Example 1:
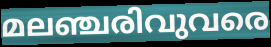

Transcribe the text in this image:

മലഞ്ചരിവുവരെ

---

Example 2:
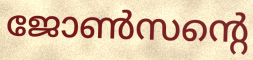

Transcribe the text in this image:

ജോൺസന്റെ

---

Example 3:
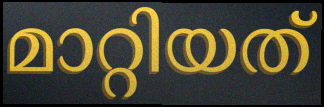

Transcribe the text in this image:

മാറ്റിയത്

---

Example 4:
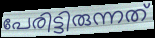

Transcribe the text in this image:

പേരിട്ടിരുന്നത്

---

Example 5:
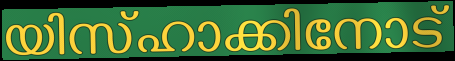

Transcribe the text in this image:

യിസ്ഹാക്കിനോട്